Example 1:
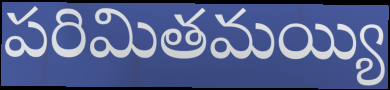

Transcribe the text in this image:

పరిమితమయ్యి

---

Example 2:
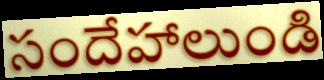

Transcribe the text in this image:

సందేహాలుండి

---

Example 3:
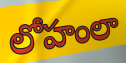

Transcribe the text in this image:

లోహంలా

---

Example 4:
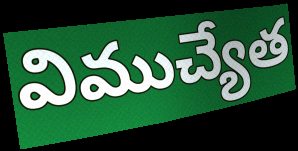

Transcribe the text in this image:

విముచ్యేత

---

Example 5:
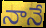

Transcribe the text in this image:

నానే